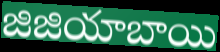
జిజియాబాయి